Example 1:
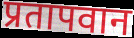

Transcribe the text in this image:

प्रतापवान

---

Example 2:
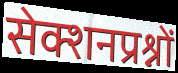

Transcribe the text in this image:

सेक्शनप्रश्नों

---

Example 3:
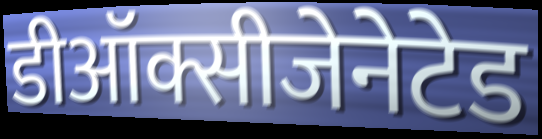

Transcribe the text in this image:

डीऑक्सीजेनेटेड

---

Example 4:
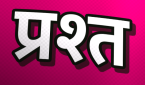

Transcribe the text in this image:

प्रश्त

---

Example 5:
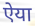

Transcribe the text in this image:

ऐया